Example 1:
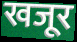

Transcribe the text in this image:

खजूर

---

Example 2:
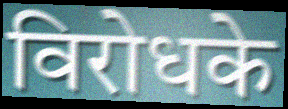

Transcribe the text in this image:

विरोधके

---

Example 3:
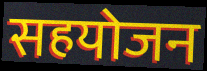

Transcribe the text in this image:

सहयोजन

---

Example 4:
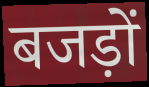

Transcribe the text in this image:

बजड़ों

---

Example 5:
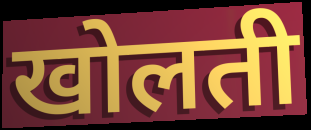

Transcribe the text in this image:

खोलती